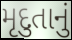
મૃદુતાનું